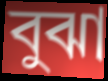
বুঝা